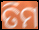
ତିମ